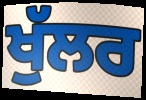
ਖੁੱਲਰ